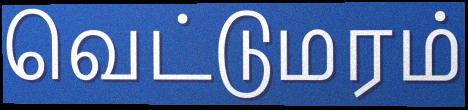
வெட்டுமரம்